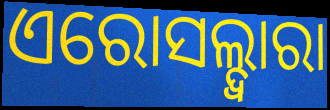
ଏରୋସଲ୍ଦ୍ୱାରା